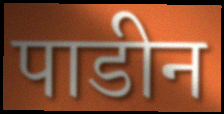
पाडीन